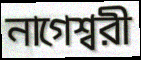
নাগেশ্বরী